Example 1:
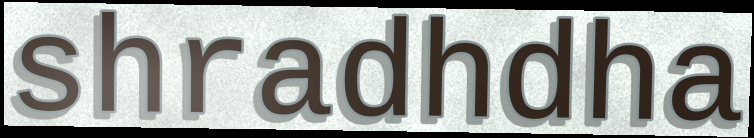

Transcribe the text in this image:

shradhdha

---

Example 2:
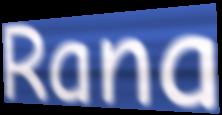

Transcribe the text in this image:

Rana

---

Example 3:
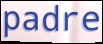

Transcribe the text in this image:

padre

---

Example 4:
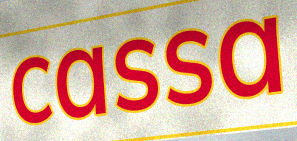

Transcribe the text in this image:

cassa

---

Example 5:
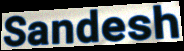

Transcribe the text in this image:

Sandesh